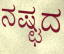
ನಷ್ಟದ